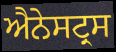
ਐਨੇਸਟ੍ਰਸ